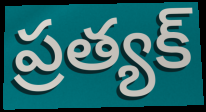
ప్రత్యక్